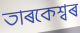
তাৰকেশ্বৰ